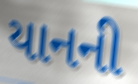
યાનની